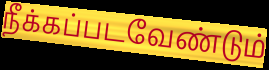
நீக்கப்படவேண்டும்